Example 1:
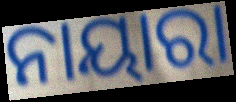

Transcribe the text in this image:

ନାୟାରା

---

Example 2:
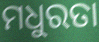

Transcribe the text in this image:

ମଧୁରତା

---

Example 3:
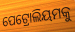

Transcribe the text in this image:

ପେଟ୍ରୋଲିୟମକୁ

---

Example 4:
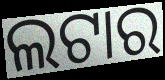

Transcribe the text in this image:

ଲଟାର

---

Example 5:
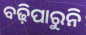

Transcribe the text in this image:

ବଢ଼ିପାରୁନି